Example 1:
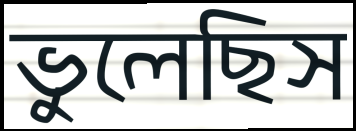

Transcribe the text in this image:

ভুলেছিস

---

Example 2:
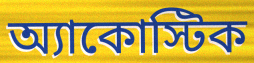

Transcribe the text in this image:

অ্যাকোস্টিক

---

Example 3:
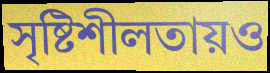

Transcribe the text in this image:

সৃষ্টিশীলতায়ও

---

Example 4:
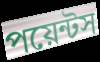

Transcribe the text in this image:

পয়েন্টস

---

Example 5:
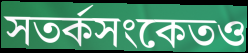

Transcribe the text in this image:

সতর্কসংকেতও